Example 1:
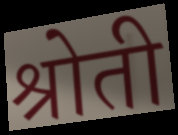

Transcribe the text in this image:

श्रोती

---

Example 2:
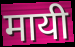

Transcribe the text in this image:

मायी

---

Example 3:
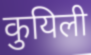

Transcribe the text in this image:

कुयिली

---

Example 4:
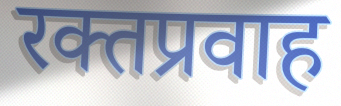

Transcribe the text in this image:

रक्तप्रवाह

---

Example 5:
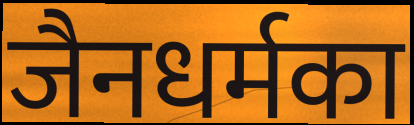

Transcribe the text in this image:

जैनधर्मका